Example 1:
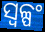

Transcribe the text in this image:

ସ୍ୱଳ୍ପଂ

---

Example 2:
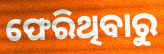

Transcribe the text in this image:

ଫେରିଥିବାରୁ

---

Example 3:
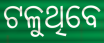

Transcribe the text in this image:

ଟଳୁଥିବେ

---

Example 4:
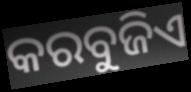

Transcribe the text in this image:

କରବୁଜିଏ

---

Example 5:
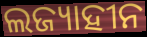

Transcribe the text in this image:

ଲଜ୍ଯାହୀନ